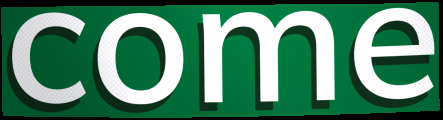
come